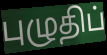
புழுதிப்